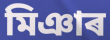
মিঞাৰ